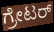
ಗ್ರೇಟರ್